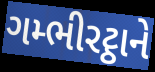
ગમ્ભીરટ્ઠાને